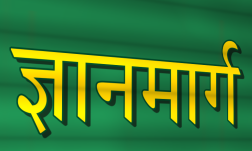
ज्ञानमार्ग